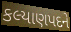
કલ્યાણપદને